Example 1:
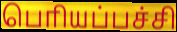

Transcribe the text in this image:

பெரியப்பச்சி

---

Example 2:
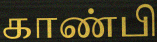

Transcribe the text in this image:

காண்பி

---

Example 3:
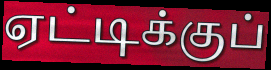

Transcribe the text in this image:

ஏட்டிக்குப்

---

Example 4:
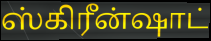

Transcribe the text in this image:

ஸ்கிரீன்ஷாட்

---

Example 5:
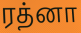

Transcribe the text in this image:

ரத்னா